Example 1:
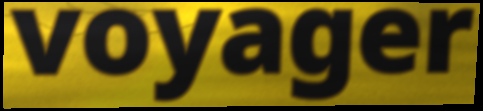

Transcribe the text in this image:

voyager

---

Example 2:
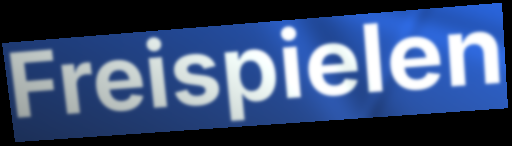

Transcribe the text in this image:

Freispielen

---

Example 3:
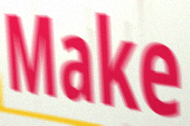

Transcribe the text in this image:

Make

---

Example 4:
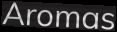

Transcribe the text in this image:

Aromas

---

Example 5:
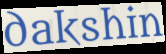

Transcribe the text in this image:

dakshin